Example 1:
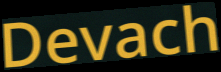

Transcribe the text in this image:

Devach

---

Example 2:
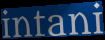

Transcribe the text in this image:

intani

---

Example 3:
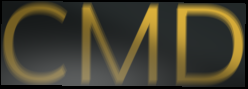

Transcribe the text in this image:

CMD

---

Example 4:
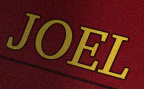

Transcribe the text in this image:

JOEL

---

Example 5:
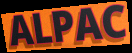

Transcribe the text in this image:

ALPAC